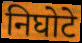
निघोटे